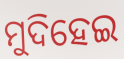
ମୁଦିହେଇ